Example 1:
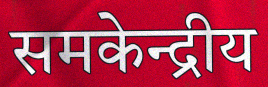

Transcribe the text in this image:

समकेन्द्रीय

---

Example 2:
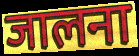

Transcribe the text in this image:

जालना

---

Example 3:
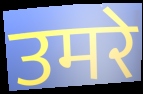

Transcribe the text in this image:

उमरे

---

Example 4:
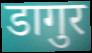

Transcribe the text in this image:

डागुर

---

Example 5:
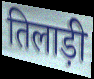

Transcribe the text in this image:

तिलाड़ी